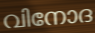
വിനോദ